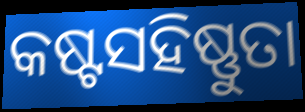
କଷ୍ଟସହିଷ୍ଣୁତା